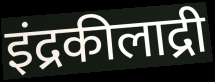
इंद्रकीलाद्री